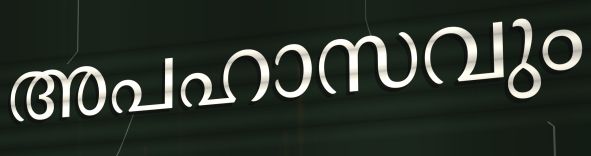
അപഹാസവും